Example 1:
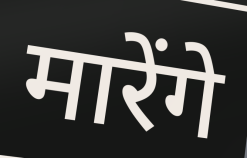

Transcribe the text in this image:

मारेंगे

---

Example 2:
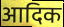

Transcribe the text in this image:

आदिक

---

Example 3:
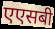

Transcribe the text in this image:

एएसबी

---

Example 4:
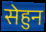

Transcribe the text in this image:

सेहुन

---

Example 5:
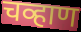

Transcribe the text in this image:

चव्हाण